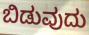
ಬಿಡುವುದು